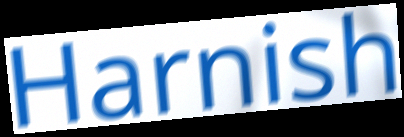
Harnish